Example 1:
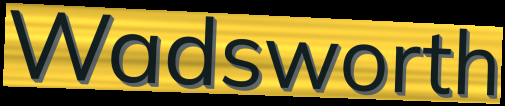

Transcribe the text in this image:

Wadsworth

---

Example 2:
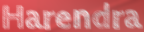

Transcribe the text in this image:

Harendra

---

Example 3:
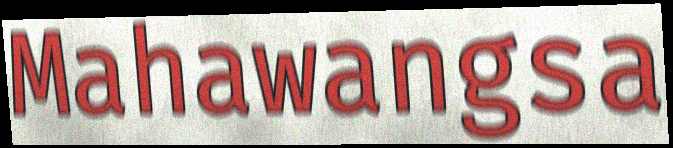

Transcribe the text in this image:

Mahawangsa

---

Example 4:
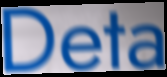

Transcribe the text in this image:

Deta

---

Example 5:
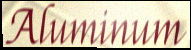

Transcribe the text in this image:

Aluminum